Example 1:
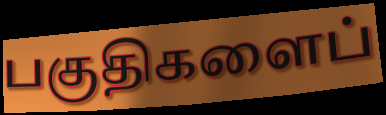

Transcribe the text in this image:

பகுதிகளைப்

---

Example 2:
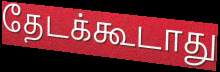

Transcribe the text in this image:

தேடக்கூடாது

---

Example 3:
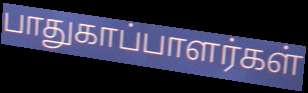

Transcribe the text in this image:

பாதுகாப்பாளர்கள்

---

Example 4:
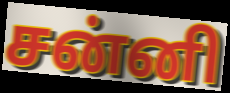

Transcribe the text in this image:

சன்னி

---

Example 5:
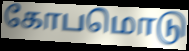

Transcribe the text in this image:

கோபமொடு